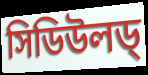
সিডিউলড্